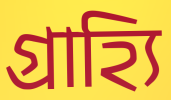
গ্রাহ্যি